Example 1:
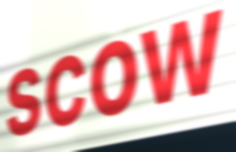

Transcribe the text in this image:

scow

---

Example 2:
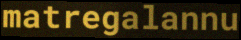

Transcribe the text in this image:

matregalannu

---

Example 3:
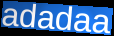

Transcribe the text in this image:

adadaa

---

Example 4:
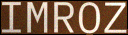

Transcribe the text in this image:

IMROZ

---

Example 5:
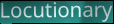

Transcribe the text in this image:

Locutionary